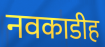
नवकाडीह